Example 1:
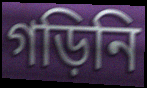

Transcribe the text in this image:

গড়িনি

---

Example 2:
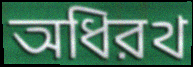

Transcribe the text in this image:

অধিরথ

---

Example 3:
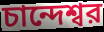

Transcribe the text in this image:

চান্দেশ্বর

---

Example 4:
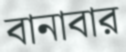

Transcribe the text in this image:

বানাবার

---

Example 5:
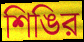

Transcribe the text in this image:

শিঙির